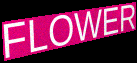
FLOWER